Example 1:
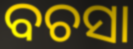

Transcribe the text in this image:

ବଚସା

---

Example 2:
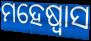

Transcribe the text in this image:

ମହେଷ୍ୱାସ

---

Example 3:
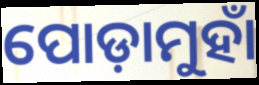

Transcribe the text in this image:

ପୋଡ଼ାମୁହାଁ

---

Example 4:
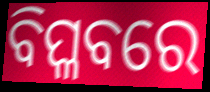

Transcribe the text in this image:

ବିପ୍ଳବରେ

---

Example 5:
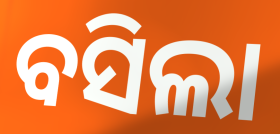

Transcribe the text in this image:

ବସିଲା